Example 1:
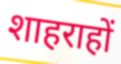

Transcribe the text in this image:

शाहराहों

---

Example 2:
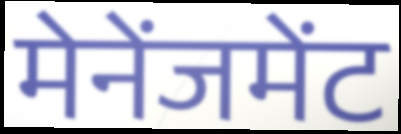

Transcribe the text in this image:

मेनेंजमेंट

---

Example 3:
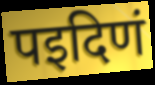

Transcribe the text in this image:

पइदिणं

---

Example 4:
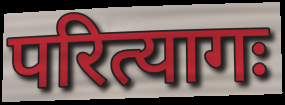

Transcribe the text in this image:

परित्यागः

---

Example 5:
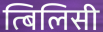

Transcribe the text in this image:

त्बिलिसी